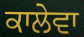
ਕਾਲੇਵਾ